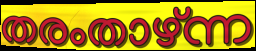
തരംതാഴ്ന്ന